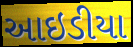
આઇડીયા